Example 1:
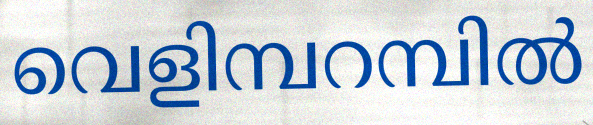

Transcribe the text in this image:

വെളിമ്പറമ്പിൽ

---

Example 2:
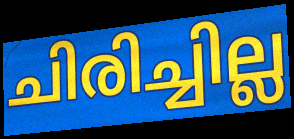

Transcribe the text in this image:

ചിരിച്ചില്ല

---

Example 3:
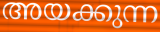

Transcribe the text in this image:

അയക്കുന്ന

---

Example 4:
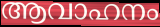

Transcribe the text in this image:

ആവാഹനം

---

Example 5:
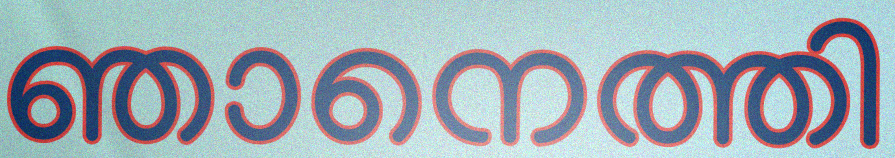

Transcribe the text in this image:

ഞാനെത്തി